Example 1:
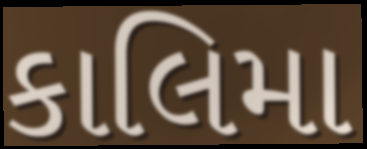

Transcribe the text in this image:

કાલિમા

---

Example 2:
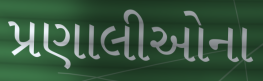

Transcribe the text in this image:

પ્રણાલીઓના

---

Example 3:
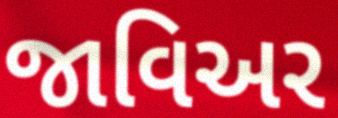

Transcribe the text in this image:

જાવિઅર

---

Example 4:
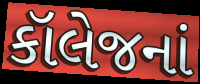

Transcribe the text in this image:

કૉલેજનાં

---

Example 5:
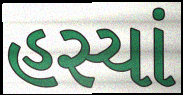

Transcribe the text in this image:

હસ્યાં